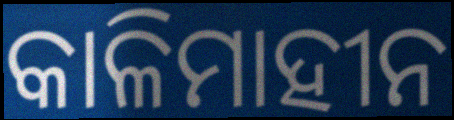
କାଳିମାହୀନ